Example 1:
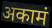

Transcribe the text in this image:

अकामं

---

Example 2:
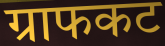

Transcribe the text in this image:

ग्राफकट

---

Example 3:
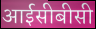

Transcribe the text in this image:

आईसीबीसी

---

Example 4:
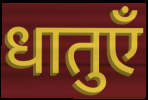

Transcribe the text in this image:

धातुएँ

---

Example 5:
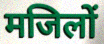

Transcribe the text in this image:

मजिलों